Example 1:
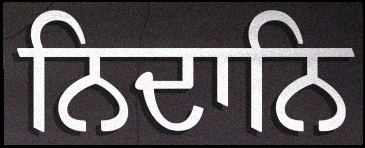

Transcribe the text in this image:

ਨਿਦਾਨਿ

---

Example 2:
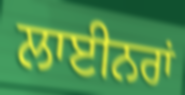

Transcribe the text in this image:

ਲਾਈਨਰਾਂ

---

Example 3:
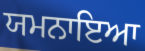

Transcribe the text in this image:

ਯਮਨਾਇਆ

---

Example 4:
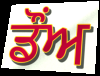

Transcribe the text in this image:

ਡੌਂਅ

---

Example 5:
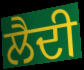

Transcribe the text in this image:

ਲੈਦੀ